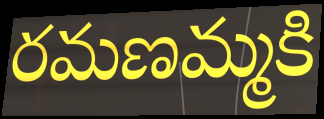
రమణమ్మకి